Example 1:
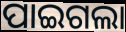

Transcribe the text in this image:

ପାଇଗଲା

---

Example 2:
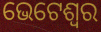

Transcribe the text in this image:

ଭେଟେଶ୍ୱର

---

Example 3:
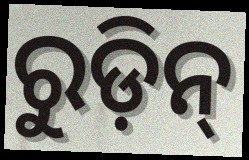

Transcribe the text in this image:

ରୁଡ଼ିନ୍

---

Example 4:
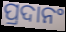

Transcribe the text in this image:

ପ୍ରଦାନଂ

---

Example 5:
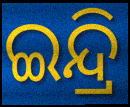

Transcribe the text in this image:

ଇନ୍ଦ୍ରି